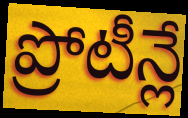
ప్రోటీన్లే